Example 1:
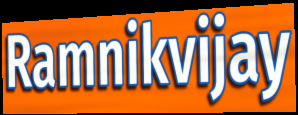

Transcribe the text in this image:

Ramnikvijay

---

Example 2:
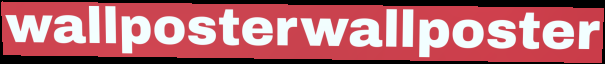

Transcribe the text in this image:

wallposterwallposter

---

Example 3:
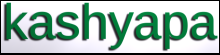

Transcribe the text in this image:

kashyapa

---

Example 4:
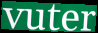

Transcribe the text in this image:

vuter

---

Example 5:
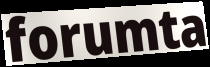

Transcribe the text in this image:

forumta